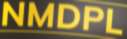
NMDPL